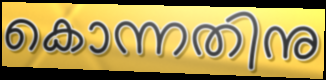
കൊന്നതിനു